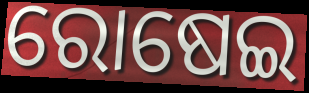
ରୋଷେଇ